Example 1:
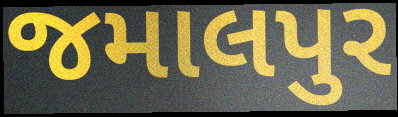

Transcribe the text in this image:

જમાલપુર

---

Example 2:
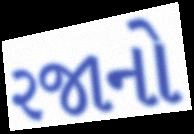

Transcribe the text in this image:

રજાનો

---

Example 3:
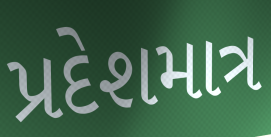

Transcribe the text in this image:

પ્રદેશમાત્ર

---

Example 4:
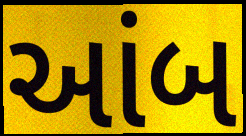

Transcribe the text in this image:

આંબ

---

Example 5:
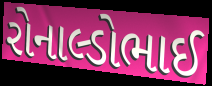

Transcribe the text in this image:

રોનાલ્ડોભાઈ